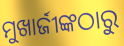
ମୁଖାର୍ଜୀଙ୍କଠାରୁ